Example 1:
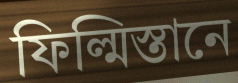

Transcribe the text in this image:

ফিল্মিস্তানে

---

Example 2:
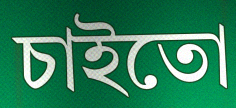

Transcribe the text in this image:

চাইতো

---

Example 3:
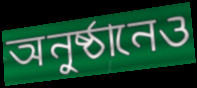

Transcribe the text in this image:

অনুষ্ঠানেও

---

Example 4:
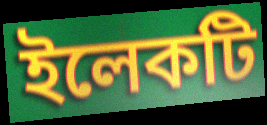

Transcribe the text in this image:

ইলেকটি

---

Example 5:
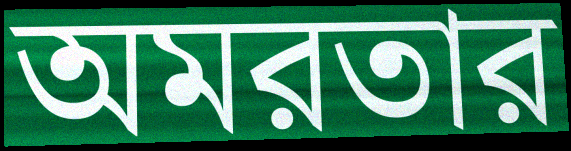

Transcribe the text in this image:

অমরতার